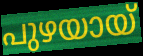
പുഴയായ്